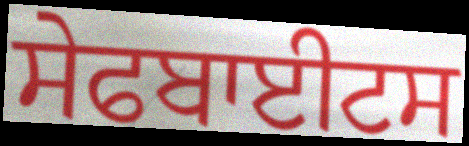
ਸੇਫਬਾਈਟਸ